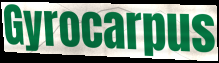
Gyrocarpus